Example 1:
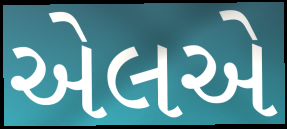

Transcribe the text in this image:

એલએ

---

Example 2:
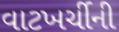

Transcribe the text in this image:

વાટખર્ચીની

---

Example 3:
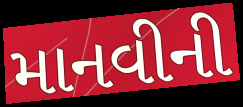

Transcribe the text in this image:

માનવીની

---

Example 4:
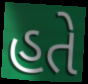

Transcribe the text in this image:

હતે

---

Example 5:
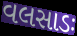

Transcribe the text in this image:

વલસાડઃ